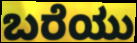
ಬರೆಯು